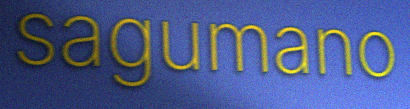
sagumano